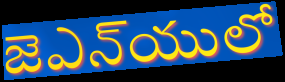
జెఎన్‌యులో